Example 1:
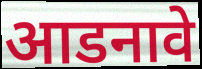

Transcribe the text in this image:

आडनावे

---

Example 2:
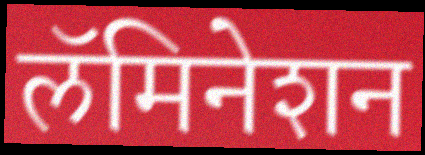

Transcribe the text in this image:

लॅमिनेशन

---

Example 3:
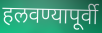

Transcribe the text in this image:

हलवण्यापूर्वी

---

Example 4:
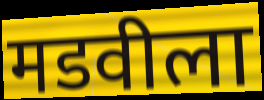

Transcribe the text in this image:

मडवीला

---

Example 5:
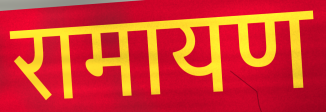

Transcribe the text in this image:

रामायण